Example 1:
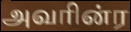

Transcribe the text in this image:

அவரின்ர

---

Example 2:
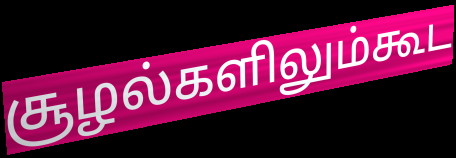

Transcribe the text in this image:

சூழல்களிலும்கூட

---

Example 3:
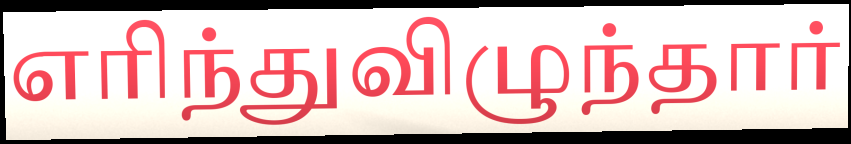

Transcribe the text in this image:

எரிந்துவிழுந்தார்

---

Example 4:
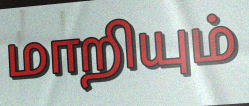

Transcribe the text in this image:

மாறியும்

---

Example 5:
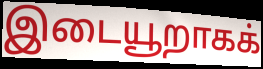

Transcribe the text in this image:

இடையூறாகக்